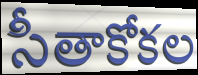
సీతాకోకల